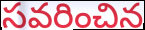
సవరించిన